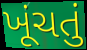
ખૂંચતું